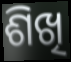
ଶିଖି